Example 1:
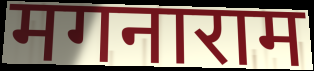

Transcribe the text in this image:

मगनाराम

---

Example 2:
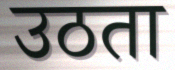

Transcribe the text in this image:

उठता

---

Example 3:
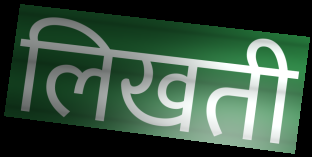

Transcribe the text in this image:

लिखती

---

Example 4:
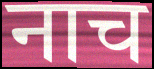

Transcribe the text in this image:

नाच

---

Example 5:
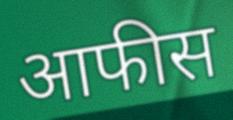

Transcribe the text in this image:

आफीस